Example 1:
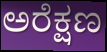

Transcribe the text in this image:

ಅರೆಕ್ಷಣ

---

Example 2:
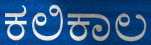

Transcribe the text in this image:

ಕಲಿಕಾಲ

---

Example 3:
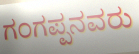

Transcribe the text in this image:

ಗಂಗಪ್ಪನವರು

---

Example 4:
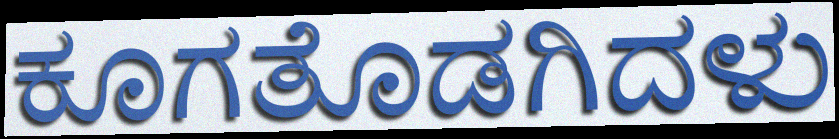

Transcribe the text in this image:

ಕೂಗತೊಡಗಿದಳು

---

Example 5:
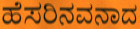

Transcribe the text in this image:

ಹೆಸರಿನವನಾದ